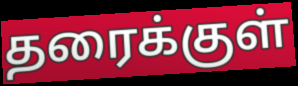
தரைக்குள்